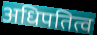
अधिपतित्व